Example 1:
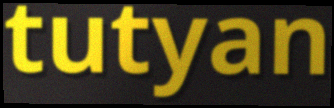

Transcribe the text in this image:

tutyan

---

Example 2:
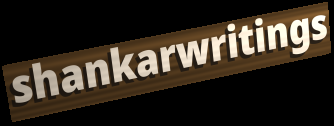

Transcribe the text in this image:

shankarwritings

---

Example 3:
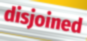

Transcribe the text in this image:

disjoined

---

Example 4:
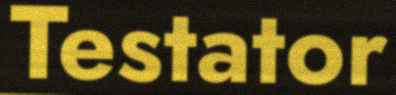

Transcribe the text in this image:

Testator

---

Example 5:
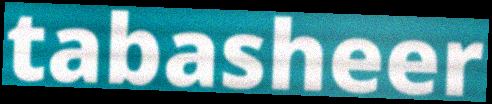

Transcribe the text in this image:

tabasheer